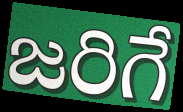
జరిగే